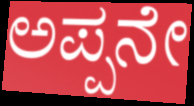
ಅಪ್ಪನೇ